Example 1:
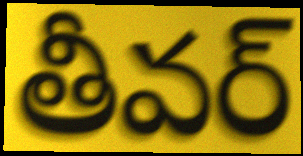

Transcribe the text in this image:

తీవర్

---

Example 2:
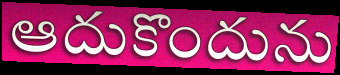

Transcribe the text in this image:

ఆదుకొందును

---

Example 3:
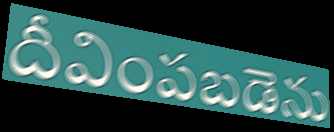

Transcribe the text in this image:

దీవింపబడెను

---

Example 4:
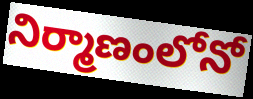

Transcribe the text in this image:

నిర్మాణంలోనో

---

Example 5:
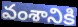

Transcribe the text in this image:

వంశానికి